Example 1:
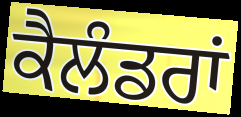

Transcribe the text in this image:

ਕੈਲੰਡਰਾਂ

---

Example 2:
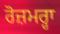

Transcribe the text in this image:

ਰੋਜ਼ਮਰ੍ਹਾ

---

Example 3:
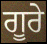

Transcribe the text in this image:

ਗੂਰੇ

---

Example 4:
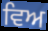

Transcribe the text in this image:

ਵਿਅ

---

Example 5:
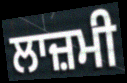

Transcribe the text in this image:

ਲਾਜ਼ਮੀ